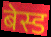
बेस्ड